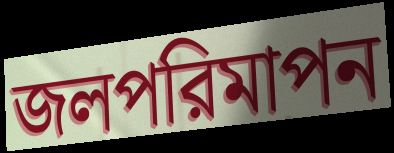
জলপরিমাপন